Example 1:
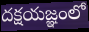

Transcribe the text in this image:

దక్షయజ్ఞంలో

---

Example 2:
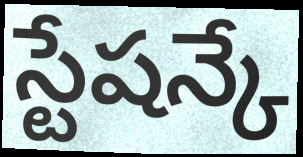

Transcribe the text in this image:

స్టేషన్కే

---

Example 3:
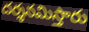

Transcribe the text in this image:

దర్శనమిస్తారు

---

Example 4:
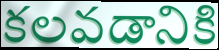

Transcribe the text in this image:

కలవడానికి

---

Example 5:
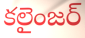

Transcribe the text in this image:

కలైంజర్